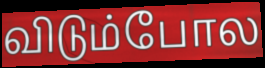
விடும்போல